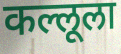
कल्लूला